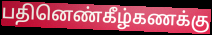
பதினெண்கீழ்கணக்கு